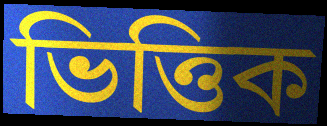
ভিত্তিক